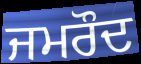
ਜਮਰੌਦ